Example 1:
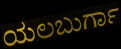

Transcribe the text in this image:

ಯಲಬುರ್ಗಾ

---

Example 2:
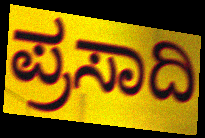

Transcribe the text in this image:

ಪ್ರಸಾದಿ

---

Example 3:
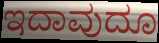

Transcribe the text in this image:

ಇದಾವುದೂ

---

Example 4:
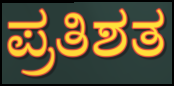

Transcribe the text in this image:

ಪ್ರತಿಶತ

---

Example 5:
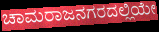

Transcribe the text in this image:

ಚಾಮರಾಜನಗರದಲ್ಲಿಯೇ